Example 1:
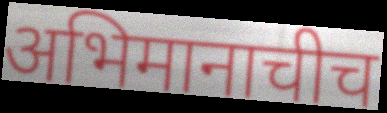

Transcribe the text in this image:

अभिमानाचीच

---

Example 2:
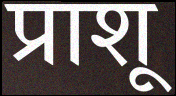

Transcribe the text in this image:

प्राशू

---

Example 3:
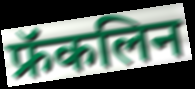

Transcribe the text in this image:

फ्रॅकलिन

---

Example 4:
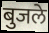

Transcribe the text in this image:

बुजले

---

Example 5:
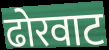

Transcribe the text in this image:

ढोरवाट